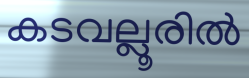
കടവല്ലൂരിൽ